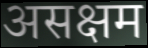
असक्षम